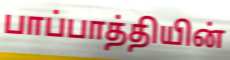
பாப்பாத்தியின்